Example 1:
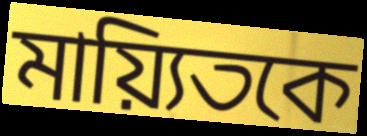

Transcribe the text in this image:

মায়্যিতকে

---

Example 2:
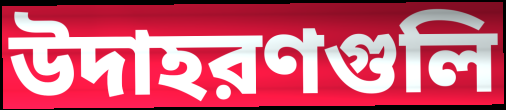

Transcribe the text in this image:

উদাহরণগুলি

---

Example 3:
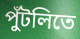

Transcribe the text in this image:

পুঁটলিতে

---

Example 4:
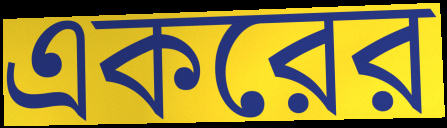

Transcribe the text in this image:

একরের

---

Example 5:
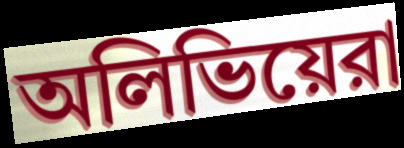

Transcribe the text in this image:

অলিভিয়েরা